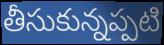
తీసుకున్నప్పటి